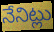
నేనిట్లు